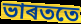
ভাৰততে